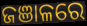
ଜଞାଳରେ